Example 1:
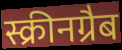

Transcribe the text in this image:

स्क्रीनग्रैब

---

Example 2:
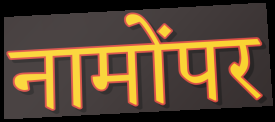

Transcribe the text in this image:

नामोंपर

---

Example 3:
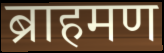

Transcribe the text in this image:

ब्राहमण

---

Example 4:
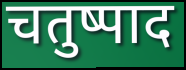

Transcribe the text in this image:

चतुष्पाद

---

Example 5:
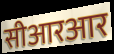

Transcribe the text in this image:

सीआरआर